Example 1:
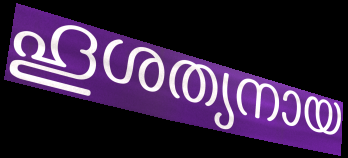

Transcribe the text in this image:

ഹൂശത്യനായ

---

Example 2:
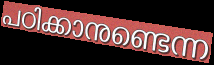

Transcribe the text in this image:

പഠിക്കാനുണ്ടെന്ന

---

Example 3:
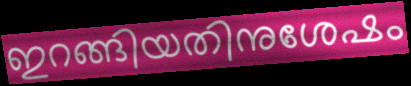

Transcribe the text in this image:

ഇറങ്ങിയതിനുശേഷം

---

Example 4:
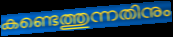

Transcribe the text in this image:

കണ്ടെത്തുന്നതിനും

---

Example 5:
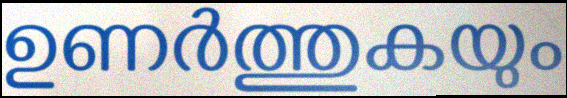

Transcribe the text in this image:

ഉണർത്തുകയും